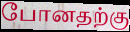
போனதற்கு